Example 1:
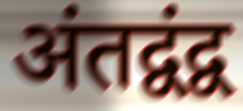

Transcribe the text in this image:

अंतद्वंद्व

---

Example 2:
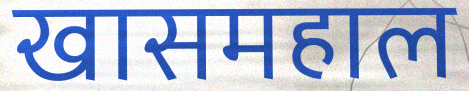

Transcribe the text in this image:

खासमहाल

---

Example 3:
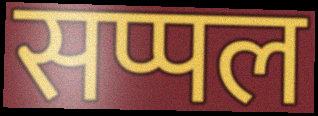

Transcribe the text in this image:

सप्पल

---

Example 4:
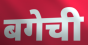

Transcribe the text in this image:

बगेची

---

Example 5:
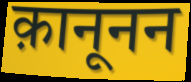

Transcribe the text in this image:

क़ानूनन